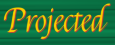
Projected